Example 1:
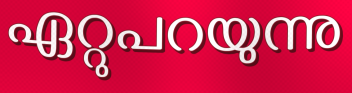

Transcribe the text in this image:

ഏറ്റുപറയുന്നു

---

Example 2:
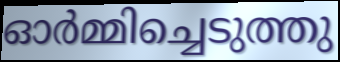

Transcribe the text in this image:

ഓർമ്മിച്ചെടുത്തു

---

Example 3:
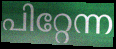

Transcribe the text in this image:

പിറ്റേന്ന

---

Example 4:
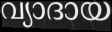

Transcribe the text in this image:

വ്യാദായ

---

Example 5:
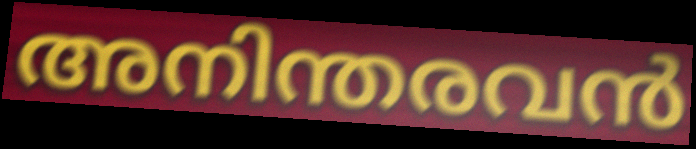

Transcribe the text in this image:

അനിന്തരവൻ